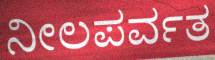
ನೀಲಪರ್ವತ